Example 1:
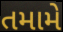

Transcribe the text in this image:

તમામે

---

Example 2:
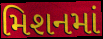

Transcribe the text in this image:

મિશનમાં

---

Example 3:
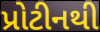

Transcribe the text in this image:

પ્રોટીનથી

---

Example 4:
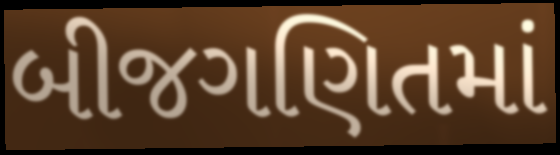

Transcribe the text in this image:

બીજગણિતમાં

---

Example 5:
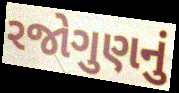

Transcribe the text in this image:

રજોગુણનું